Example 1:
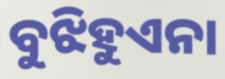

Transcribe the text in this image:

ବୁଝିହୁଏନା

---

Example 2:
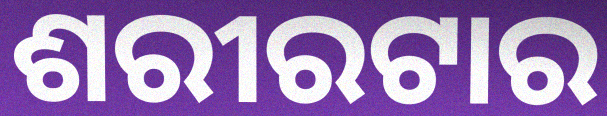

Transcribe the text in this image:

ଶରୀରଟାର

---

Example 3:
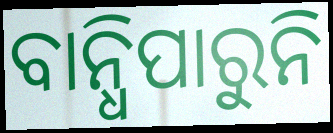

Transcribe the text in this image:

ବାନ୍ଧିପାରୁନି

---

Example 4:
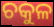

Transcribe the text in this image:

ଚକୁଳ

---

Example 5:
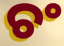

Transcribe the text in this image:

ଚଂ